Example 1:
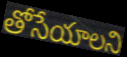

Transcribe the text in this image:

తోసేయాలని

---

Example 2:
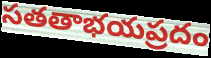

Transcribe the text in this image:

సతతాభయప్రదం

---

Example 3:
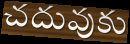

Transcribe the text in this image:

చదువుకు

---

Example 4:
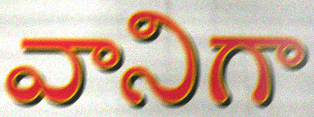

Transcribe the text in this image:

వానిగా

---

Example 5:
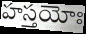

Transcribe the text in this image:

హస్తయోః